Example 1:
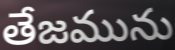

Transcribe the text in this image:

తేజమును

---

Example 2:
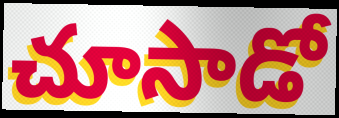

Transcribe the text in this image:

చూసాడో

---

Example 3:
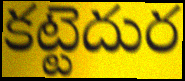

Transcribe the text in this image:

కట్టెదుర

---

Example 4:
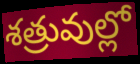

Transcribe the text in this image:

శత్రువుల్లో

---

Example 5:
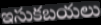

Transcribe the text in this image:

ఇసుకబయలు